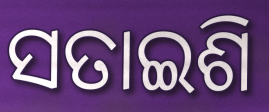
ସତାଇଶି